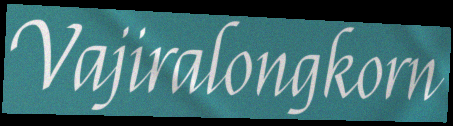
Vajiralongkorn